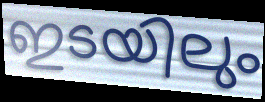
ഇടയിലും